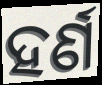
ହର୍ଣ